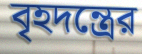
বৃহদন্ত্রের